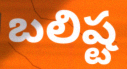
బలిష్ట